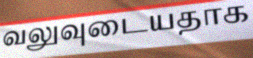
வலுவுடையதாக